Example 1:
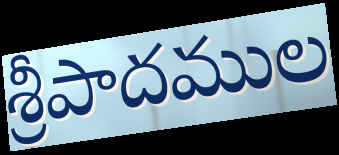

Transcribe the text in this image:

శ్రీపాదముల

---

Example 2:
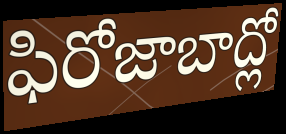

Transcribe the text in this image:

ఫిరోజాబాద్లో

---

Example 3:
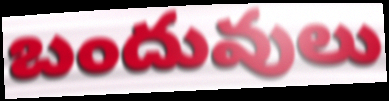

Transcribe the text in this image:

బందువులు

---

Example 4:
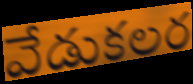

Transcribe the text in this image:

వేడుకలర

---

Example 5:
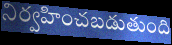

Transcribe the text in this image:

నిర్వహించబడుతుంది